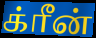
க்ரீன்